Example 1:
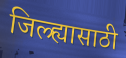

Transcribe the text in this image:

जिल्ह्यासाठी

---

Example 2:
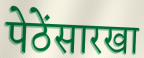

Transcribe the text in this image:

पेठेंसारखा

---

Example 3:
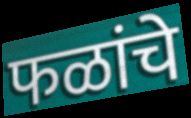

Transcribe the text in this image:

फळांचे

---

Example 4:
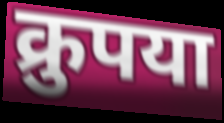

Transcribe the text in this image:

क्रुपया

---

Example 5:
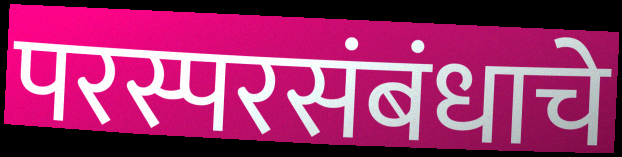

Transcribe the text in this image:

परस्परसंबंधाचे